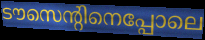
ടൗസെന്റിനെപ്പോലെ